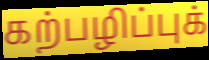
கற்பழிப்புக்